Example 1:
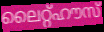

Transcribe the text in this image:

ലൈറ്റ്ഹൗസ്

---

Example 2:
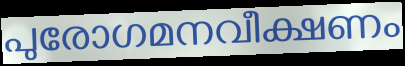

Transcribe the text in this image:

പുരോഗമനവീക്ഷണം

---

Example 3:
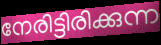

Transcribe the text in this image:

നേരിട്ടിരിക്കുന്ന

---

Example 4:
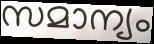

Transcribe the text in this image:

സമാന്യം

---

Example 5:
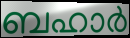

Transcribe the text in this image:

ബഹാർ